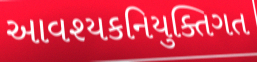
આવશ્યકનિયુક્તિગત